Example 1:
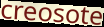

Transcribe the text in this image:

creosote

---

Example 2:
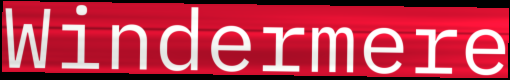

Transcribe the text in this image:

Windermere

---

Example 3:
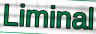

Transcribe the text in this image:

Liminal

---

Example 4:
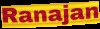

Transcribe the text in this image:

Ranajan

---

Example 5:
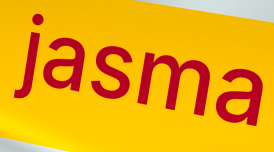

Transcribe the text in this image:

jasma